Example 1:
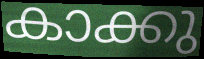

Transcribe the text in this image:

കാക്കു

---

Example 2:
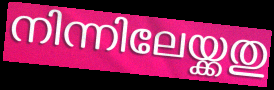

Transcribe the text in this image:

നിന്നിലേയ്ക്കതു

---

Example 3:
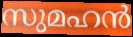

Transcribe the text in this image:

സുമഹൻ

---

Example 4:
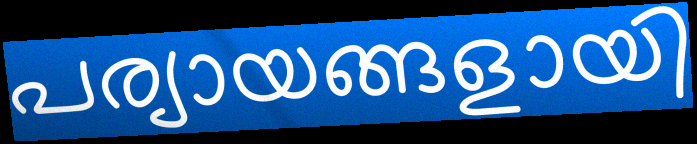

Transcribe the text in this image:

പര്യായങ്ങളായി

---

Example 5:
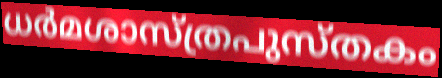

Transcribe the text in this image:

ധർമശാസ്ത്രപുസ്തകം